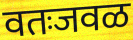
वतःजवळ